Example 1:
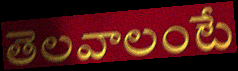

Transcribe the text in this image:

తెలవాలంటే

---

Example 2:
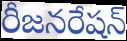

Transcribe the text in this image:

రీజనరేషన్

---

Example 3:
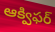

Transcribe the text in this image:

ఆక్విఫర్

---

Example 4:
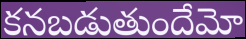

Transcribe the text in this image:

కనబడుతుందేమో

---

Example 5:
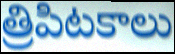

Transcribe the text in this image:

త్రిపిటకాలు